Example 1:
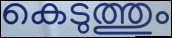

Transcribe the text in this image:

കെടുത്തും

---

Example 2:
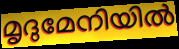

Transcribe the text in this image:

മൃദുമേനിയിൽ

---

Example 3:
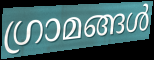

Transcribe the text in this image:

ഗ്രാമങ്ങൾ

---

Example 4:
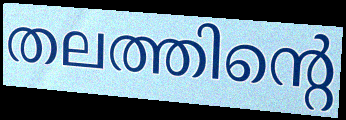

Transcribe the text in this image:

തലത്തിന്റെ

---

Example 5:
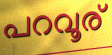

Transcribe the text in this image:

പറവൂര്